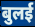
बुलई